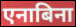
एनाबिना